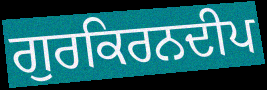
ਗੁਰਕਿਰਨਦੀਪ